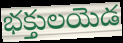
భక్తులయెడ